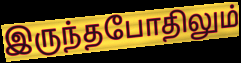
இருந்தபோதிலும்